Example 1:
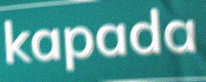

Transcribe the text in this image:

kapada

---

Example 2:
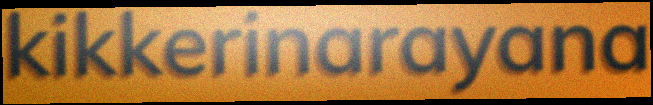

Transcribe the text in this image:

kikkerinarayana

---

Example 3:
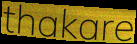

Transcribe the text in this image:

thakare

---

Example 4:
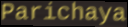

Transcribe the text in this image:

Parichaya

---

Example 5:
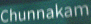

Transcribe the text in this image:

Chunnakam